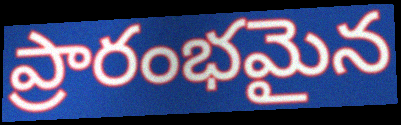
ప్రారంభమైన